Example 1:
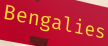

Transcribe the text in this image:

Bengalies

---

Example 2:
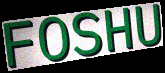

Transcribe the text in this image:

FOSHU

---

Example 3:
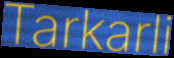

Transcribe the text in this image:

Tarkarli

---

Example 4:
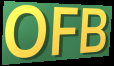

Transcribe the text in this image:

OFB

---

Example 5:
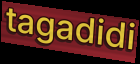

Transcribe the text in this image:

tagadidi